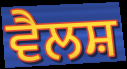
ਵੈਲਸ਼